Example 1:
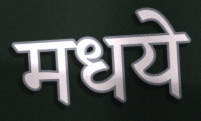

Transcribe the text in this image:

मधये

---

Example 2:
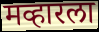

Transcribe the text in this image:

मव्हारला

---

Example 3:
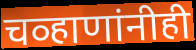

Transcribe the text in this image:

चव्हाणांनीही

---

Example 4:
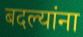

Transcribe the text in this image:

बदल्यांना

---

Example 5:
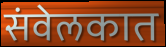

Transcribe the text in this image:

संवेलकात